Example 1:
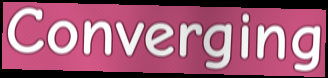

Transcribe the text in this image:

Converging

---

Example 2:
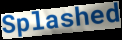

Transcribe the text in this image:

Splashed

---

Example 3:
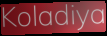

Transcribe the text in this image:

Koladiya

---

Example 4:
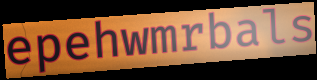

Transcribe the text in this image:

epehwmrbals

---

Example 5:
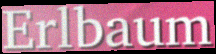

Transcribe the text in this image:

Erlbaum